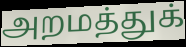
அறமத்துக்